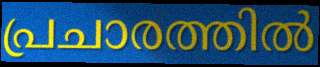
പ്രചാരത്തിൽ